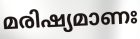
മരിഷ്യമാണഃ